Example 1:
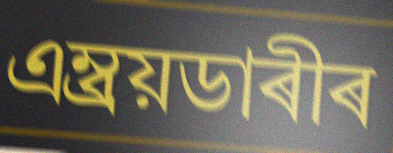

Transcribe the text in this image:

এম্ব্ৰয়ডাৰীৰ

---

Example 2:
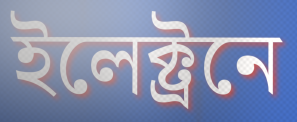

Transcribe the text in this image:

ইলেক্ট্ৰনে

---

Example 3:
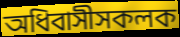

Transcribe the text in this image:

অধিবাসীসকলক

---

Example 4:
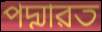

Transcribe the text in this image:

পদ্মাৱত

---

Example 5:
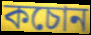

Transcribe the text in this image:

কচোন